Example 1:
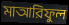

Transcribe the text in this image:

মাআরিফুল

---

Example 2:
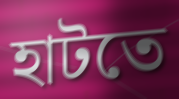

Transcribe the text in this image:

হাটতে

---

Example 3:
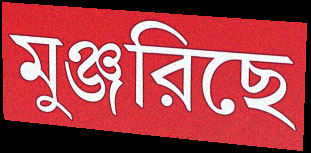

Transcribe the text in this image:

মুঞ্জরিছে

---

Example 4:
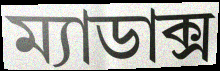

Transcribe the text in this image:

ম্যাডাক্স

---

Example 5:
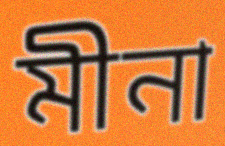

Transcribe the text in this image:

মীনা